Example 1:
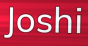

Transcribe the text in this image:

Joshi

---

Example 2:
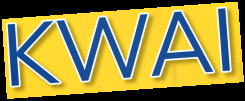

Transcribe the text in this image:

KWAI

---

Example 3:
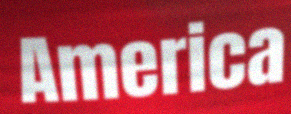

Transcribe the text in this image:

America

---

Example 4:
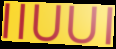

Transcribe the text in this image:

IIUUI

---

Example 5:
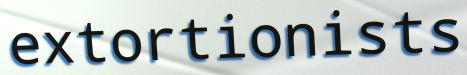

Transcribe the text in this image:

extortionists